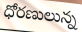
ధోరణులున్న